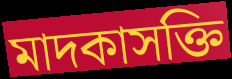
মাদকাসক্তি